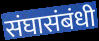
संघासंबंधी